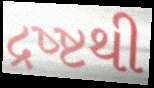
દ્રષ્ષ્ટથી